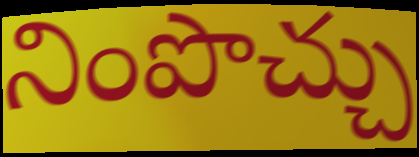
నింపొచ్చు